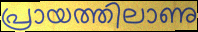
പ്രായത്തിലാണു